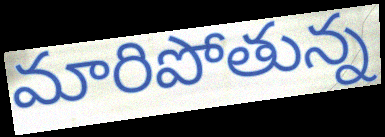
మారిపోతున్న